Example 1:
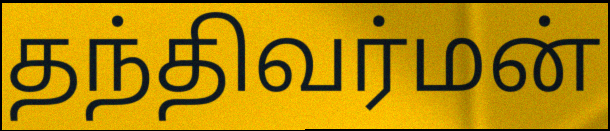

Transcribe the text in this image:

தந்திவர்மன்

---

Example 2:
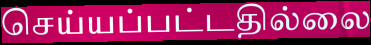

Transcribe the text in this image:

செய்யப்பட்டதில்லை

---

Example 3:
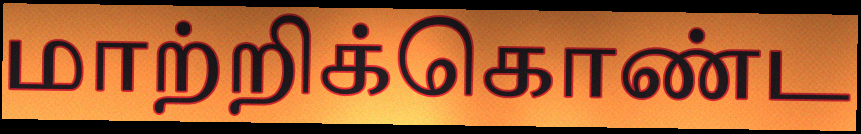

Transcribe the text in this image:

மாற்றிக்கொண்ட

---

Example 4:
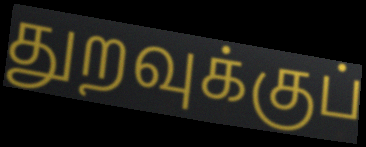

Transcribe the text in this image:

துறவுக்குப்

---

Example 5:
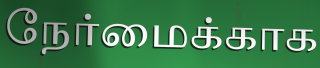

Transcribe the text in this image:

நேர்மைக்காக